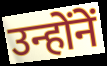
उन्‍होंनें